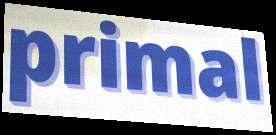
primal